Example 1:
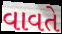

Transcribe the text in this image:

વાવતે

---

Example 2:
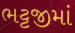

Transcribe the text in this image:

ભટ્ટજીમાં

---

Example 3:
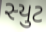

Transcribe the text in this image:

સ્યુટ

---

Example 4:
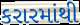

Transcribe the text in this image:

કરારમાંથી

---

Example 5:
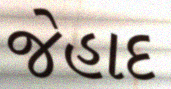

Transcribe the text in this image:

જેહાદ